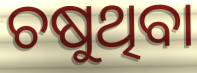
ଚଷୁଥିବା